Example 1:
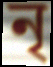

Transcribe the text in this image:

নৃ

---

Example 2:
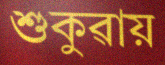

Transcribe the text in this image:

শুকুৱায়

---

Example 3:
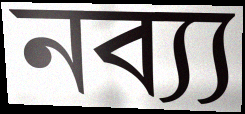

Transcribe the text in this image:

নব্য্য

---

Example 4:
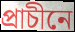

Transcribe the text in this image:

প্ৰাচীনে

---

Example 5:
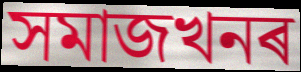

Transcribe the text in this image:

সমাজখনৰ